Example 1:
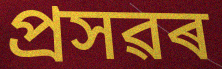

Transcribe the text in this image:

প্ৰসৱৰ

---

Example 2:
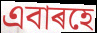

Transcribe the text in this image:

এবাৰহে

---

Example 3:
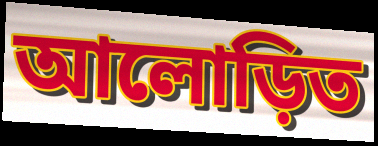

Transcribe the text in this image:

আলোড়িত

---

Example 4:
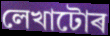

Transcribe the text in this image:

লেখাটোৰ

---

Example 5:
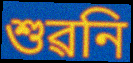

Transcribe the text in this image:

শুৱনি